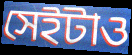
সেইটাও